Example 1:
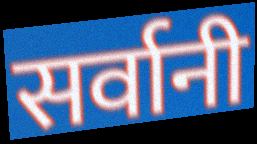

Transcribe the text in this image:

सर्वानी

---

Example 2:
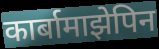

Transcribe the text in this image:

कार्बामाझेपिन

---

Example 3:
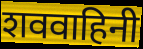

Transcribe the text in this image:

शववाहिनी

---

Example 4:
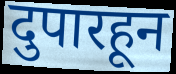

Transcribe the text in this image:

दुपारहून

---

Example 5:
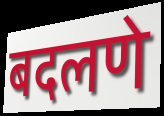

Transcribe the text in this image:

बदलणे